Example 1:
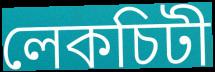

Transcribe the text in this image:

লেকচিটী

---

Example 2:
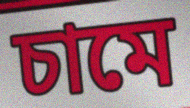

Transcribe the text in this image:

চামে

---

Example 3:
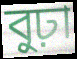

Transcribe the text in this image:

বুঢ়া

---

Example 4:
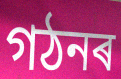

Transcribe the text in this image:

গঠনৰ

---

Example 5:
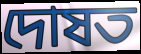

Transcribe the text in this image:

দোষত